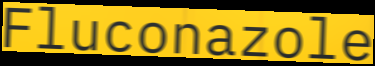
Fluconazole